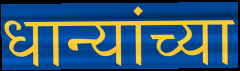
धान्यांच्या